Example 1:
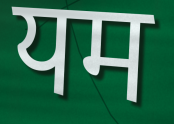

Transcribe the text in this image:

यम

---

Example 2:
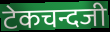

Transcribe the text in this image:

टेकचन्दजी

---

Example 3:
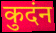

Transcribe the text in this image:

कुदंन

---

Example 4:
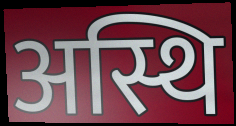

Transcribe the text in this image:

अस्थि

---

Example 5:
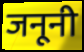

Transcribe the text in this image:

जनूनी